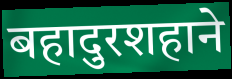
बहादुरशहाने